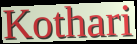
Kothari